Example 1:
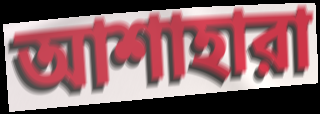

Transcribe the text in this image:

আশাহারা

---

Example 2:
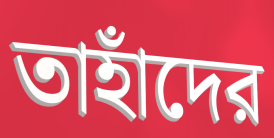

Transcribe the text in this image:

তাহাঁদের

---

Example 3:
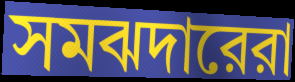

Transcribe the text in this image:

সমঝদারেরা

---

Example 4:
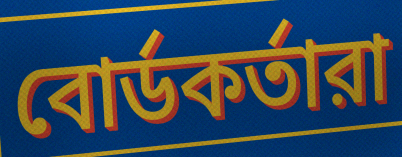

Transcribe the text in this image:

বোর্ডকর্তারা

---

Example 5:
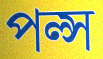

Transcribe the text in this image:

পল্স